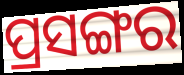
ପ୍ରସଙ୍ଗର